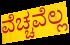
ವೆಚ್ಚವೆಲ್ಲ